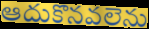
ఆదుకొనవలెను